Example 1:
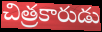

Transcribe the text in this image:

చిత్రకారుడు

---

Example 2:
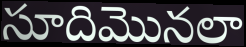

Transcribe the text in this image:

సూదిమొనలా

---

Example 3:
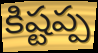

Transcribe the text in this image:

కిష్టప్ప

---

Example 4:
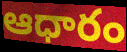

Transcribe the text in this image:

ఆధారం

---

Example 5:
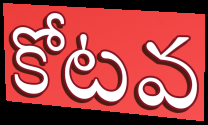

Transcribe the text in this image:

కోటవ